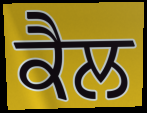
ਕੈਲ